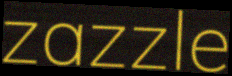
zazzle